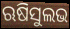
ଋଷିସୁଲଭ